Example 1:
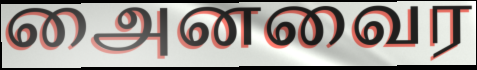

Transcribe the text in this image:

அைனவைர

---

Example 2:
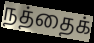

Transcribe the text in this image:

நத்தைக்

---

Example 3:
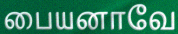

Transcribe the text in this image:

பையனாவே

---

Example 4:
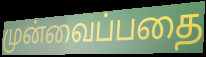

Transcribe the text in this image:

முன்வைப்பதை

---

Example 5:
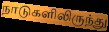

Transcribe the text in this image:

நாடுகளிலிருந்து